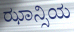
ಝಾನ್ಸಿಯ